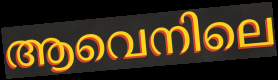
ആവെനിലെ